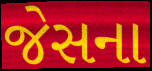
જેસના